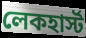
লেকহার্স্ট